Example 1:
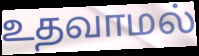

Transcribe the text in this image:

உதவாமல்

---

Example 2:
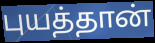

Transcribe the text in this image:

புயத்தான்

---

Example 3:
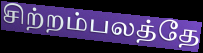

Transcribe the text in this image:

சிற்றம்பலத்தே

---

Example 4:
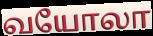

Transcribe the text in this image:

வயோலா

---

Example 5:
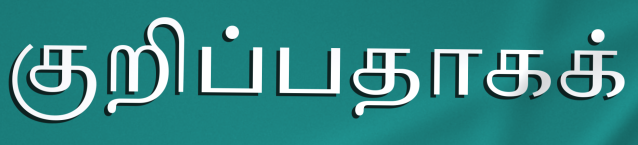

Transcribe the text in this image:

குறிப்பதாகக்